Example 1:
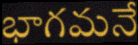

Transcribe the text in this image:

భాగమనే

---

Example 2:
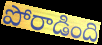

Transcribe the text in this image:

పోరాడింది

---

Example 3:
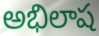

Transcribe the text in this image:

అభిలాష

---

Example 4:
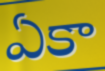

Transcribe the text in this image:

ఏకా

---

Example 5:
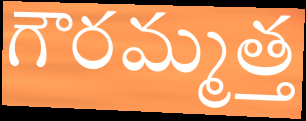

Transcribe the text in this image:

గౌరమ్మత్త